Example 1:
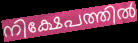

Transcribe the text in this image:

നിക്ഷേപത്തിൽ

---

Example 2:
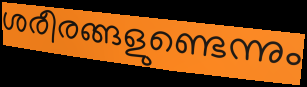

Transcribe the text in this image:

ശരീരങ്ങളുണ്ടെന്നും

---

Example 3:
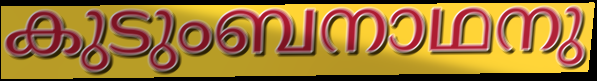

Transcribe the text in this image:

കുടുംബനാഥനു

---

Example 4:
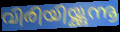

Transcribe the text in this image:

വിരിയിയ്ക്കുന്നൂ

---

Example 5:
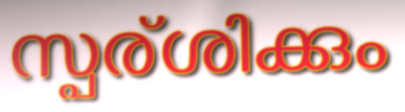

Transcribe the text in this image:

സ്പര്ശിക്കും